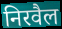
निरवैल